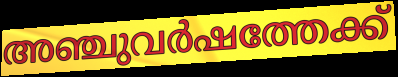
അഞ്ചുവർഷത്തേക്ക്